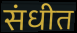
संधीत